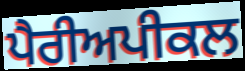
ਪੈਰੀਅਪੀਕਲ